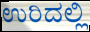
ಉರಿದಲ್ಲಿ